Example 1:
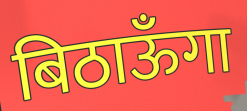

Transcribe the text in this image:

बिठाऊँगा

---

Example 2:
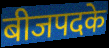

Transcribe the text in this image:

बीजपदके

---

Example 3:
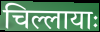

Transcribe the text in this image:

चिल्लायाः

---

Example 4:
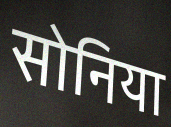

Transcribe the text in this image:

सोनिया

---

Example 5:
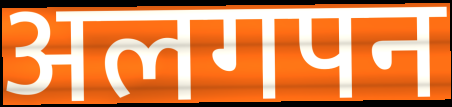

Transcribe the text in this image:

अलगपन